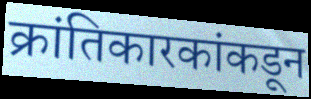
क्रांतिकारकांकडून